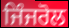
ਜਿੰਜਰੋਲ